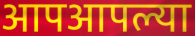
आपआपल्या